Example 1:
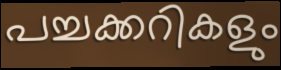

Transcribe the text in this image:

പച്ചക്കറികളും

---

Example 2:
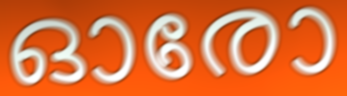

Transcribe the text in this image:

ഓരോ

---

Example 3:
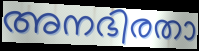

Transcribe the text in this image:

അനഭിരതാ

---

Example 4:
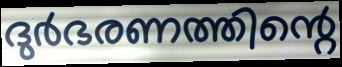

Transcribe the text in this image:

ദുർഭരണത്തിന്റെ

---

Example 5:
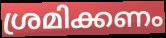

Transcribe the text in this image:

ശ്രമിക്കണം